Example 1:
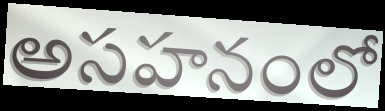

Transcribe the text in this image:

అసహనంలో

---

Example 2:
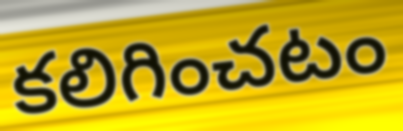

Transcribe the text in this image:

కలిగించటం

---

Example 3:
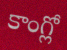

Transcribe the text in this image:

కాంగ్లో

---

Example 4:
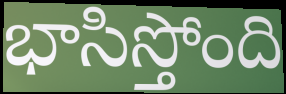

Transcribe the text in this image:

భాసిస్తోంది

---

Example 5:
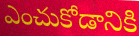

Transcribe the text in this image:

ఎంచుకోడానికి